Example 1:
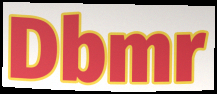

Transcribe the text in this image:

Dbmr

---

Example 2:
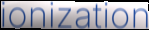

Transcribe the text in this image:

ionization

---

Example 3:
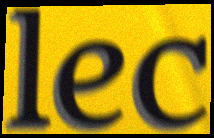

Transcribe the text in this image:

lec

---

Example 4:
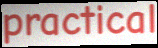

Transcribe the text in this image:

practical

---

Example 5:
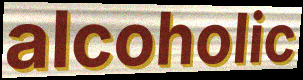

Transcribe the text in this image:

alcoholic